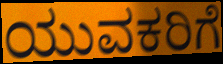
ಯುವಕರಿಗೆ